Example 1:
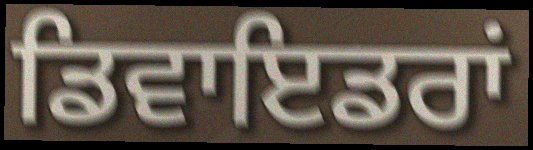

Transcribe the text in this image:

ਡਿਵਾਇਡਰਾਂ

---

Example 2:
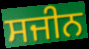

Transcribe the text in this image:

ਸਜੀਨ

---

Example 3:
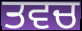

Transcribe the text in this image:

ਤਵਚ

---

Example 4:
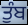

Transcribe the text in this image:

ਤੁੰਬ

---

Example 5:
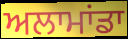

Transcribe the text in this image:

ਅਲਾਮਾਂਡਾ